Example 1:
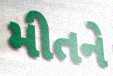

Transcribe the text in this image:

મીતને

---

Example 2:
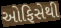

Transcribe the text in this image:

ઓફિસેથી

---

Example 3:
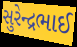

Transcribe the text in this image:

સુરેન્દ્રભાઈ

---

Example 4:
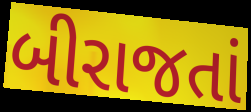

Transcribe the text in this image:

બીરાજતાં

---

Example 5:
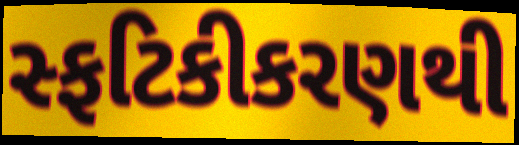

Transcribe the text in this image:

સ્ફટિકીકરણથી